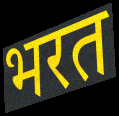
भरत